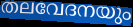
തലവേദനയും